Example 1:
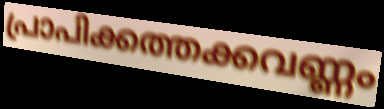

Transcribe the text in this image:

പ്രാപിക്കത്തക്കവണ്ണം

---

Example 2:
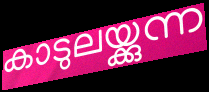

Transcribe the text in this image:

കാടുലയ്ക്കുന്ന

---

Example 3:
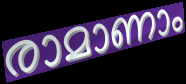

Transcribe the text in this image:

രാമാണാം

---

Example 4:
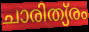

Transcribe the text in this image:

ചാരിത്യ്രം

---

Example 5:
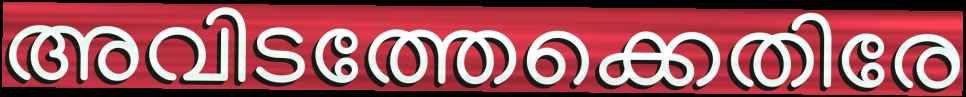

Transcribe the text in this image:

അവിടത്തേക്കെതിരേ